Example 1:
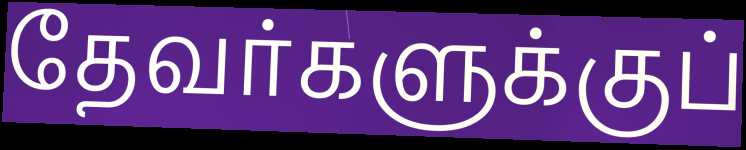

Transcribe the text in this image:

தேவர்களுக்குப்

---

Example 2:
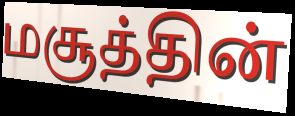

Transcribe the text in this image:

மசூத்தின்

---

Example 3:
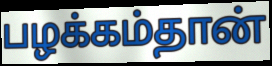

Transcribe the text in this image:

பழக்கம்தான்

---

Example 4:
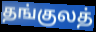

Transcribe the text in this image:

தங்குலத்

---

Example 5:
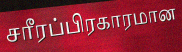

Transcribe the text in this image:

சரீரப்பிரகாரமான